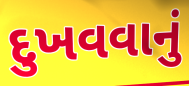
દુખવવાનું